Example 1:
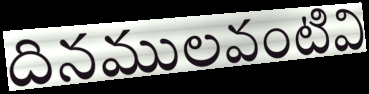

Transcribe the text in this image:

దినములవంటివి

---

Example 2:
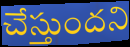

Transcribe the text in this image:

చేస్తుందని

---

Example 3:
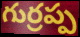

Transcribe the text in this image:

గుర్రప్ప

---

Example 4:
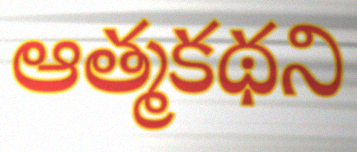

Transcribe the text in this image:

ఆత్మకథని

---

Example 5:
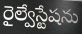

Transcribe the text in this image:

రైల్వేస్టేషను